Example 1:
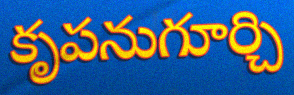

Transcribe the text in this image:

కృపనుగూర్చి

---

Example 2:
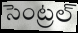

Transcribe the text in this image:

సెంట్రల్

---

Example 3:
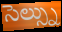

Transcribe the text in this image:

సెల్స్ను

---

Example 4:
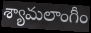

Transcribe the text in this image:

శ్యామలాంగీం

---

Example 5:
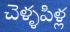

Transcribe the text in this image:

చెళ్ళపిళ్ల